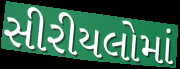
સીરીયલોમાં